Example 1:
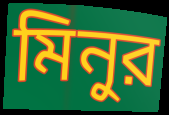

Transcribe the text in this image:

মিনুর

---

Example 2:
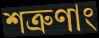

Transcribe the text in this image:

শত্রুণাং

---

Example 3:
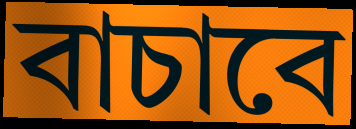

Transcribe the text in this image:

বাচাবে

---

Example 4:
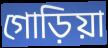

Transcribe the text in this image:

গোড়িয়া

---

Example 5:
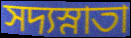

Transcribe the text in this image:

সদ্যস্নাতা